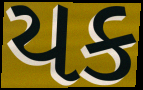
યક